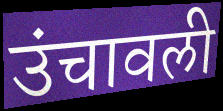
उंचावली